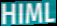
HIML